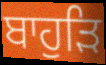
ਬਾਹੁੜਿ